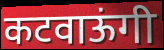
कटवाऊंगी